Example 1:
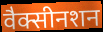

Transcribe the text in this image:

वैक्सीनशन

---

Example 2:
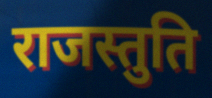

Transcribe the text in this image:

राजस्तुति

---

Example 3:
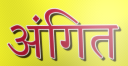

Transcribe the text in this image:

अंगित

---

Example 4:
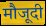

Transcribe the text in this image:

मौजूदी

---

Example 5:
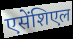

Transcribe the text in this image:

एसेंशिएल